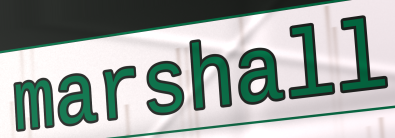
marshall